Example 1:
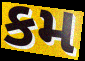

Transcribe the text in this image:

કમ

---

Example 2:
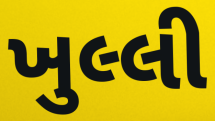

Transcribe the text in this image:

ખુલ્લી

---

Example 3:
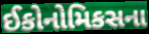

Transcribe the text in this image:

ઈકોનોમિકસના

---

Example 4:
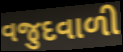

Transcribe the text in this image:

વજુદવાળી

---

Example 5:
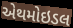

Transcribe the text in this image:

એથમોઇડલ